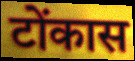
टोंकास